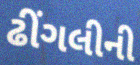
ઢીંગલીની